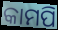
କାମପି